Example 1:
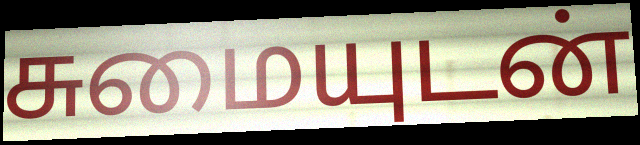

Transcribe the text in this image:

சுமையுடன்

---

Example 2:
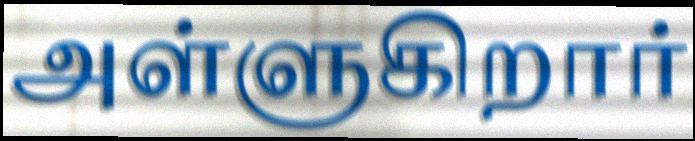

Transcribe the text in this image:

அள்ளுகிறார்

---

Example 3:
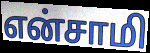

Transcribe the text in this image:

என்சாமி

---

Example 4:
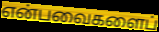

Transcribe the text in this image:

என்பவைகளைப்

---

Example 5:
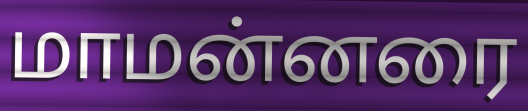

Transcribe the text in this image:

மாமன்னரை